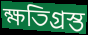
ক্ষতিগ্ৰস্ত